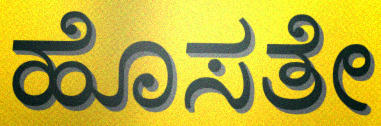
ಹೊಸತೇ